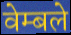
वेम्बले